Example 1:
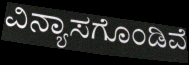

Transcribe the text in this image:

ವಿನ್ಯಾಸಗೊಂಡಿವೆ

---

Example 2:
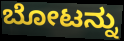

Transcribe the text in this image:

ಬೋಟನ್ನು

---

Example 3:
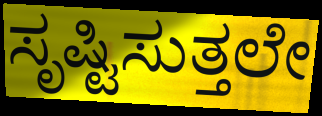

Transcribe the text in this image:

ಸೃಷ್ಟಿಸುತ್ತಲೇ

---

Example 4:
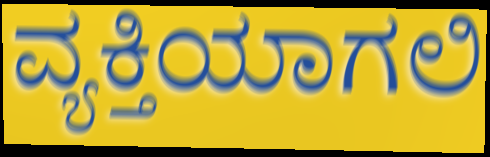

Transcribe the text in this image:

ವ್ಯಕ್ತಿಯಾಗಲಿ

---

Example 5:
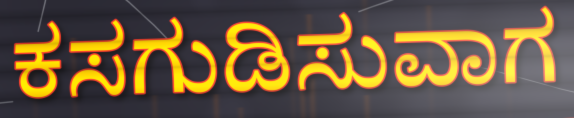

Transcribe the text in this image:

ಕಸಗುಡಿಸುವಾಗ